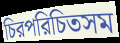
চিরপরিচিতসম